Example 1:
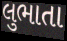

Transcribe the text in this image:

લુભાતા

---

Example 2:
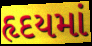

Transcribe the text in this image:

હૃદયમાં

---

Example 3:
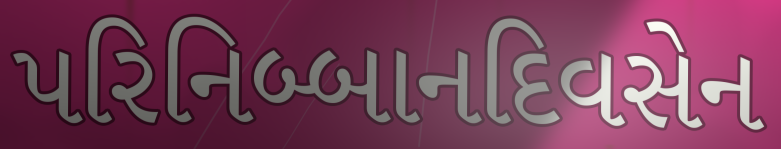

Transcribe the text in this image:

પરિનિબ્બાનદિવસેન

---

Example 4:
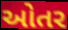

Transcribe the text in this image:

ઓતર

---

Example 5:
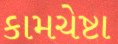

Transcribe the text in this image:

કામચેષ્ટા